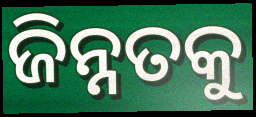
ଜିନ୍ନତକୁ